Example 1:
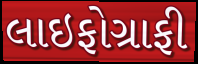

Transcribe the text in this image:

લાઇફોગ્રાફી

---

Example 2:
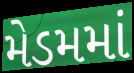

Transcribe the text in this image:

મેડમમાં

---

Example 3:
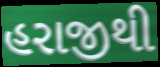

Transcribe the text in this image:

હરાજીથી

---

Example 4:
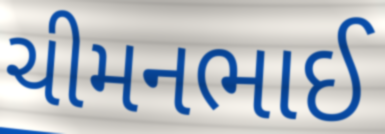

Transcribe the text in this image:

ચીમનભાઈ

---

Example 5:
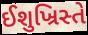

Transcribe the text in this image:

ઈશુખ્રિસ્તે